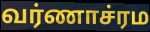
வர்ணாச்ரம